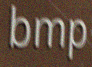
bmp